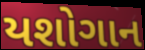
યશોગાન